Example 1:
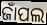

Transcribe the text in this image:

ଜାଁପଲ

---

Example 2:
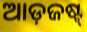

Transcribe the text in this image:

ଆଡ଼ଜଷ୍ଟ୍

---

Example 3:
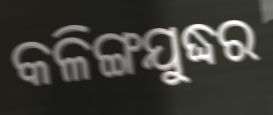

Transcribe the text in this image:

କଳିଙ୍ଗଯୁଦ୍ଧର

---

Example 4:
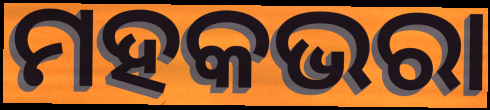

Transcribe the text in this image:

ମହକଭରା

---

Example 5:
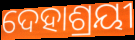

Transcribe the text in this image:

ଦେହାଶ୍ରୟୀ